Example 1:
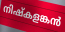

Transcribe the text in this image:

നിഷ്കളങ്കൻ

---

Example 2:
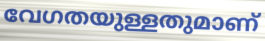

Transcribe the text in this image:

വേഗതയുള്ളതുമാണ്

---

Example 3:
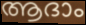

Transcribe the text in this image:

ആദാം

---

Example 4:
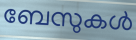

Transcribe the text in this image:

ബേസുകൾ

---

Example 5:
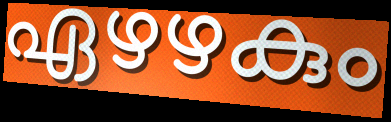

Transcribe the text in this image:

ഏഴഴകും